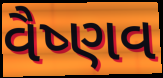
વૈષ્ણવ